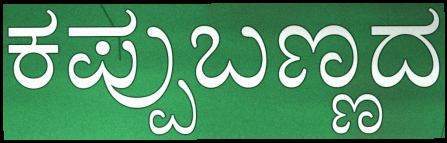
ಕಪ್ಪುಬಣ್ಣದ